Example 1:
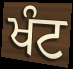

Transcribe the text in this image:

ਖੰਟ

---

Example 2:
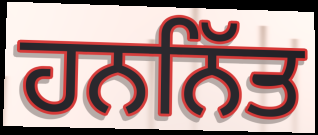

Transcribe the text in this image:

ਹਨਨਿੱਤ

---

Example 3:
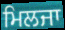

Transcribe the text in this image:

ਮਿਲਜਾ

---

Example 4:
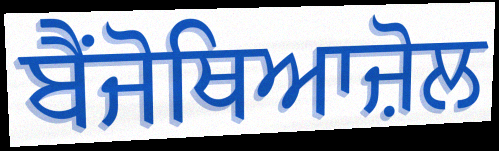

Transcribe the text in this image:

ਬੈਂਜੋਥਿਆਜ਼ੋਲ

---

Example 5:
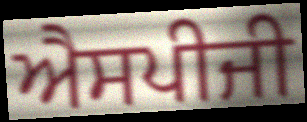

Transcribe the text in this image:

ਐਸਪੀਜੀ